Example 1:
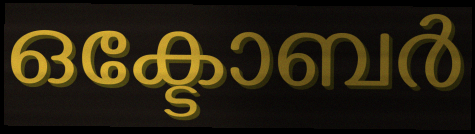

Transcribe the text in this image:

ഒക്ടോബർ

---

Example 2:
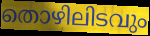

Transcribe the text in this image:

തൊഴിലിടവും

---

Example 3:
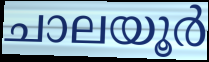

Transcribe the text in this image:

ചാലയൂർ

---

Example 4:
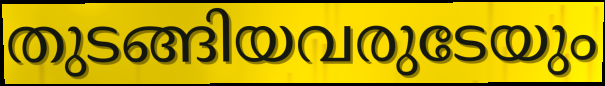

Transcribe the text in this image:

തുടങ്ങിയവരുടേയും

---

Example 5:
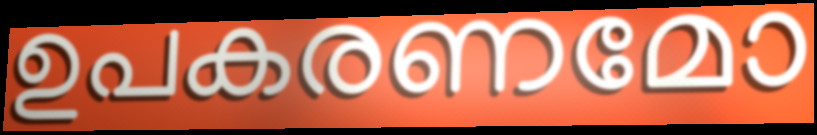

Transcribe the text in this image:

ഉപകരണമോ